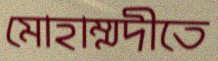
মোহাম্মদীতে